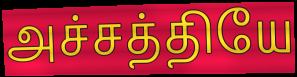
அச்சத்தியே